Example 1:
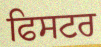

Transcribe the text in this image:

ਫਿਸਟਰ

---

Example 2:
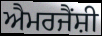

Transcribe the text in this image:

ਐਮਰਜੈਂਸ਼ੀ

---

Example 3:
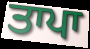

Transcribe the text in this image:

ਤਾਪਾ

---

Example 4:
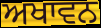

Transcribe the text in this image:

ਅਖਾਵਨ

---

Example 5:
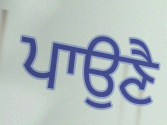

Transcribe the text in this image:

ਪਾਉਣੈ